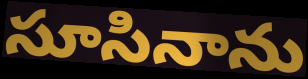
సూసినాను